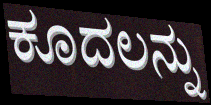
ಕೂದಲನ್ನು